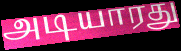
அடியாரது